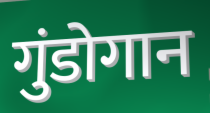
गुंडोगान